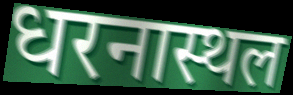
धरनास्थल